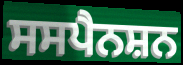
ਸਸਪੈਨਸ਼ਨ